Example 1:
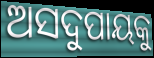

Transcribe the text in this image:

ଅସଦୁପାୟକୁ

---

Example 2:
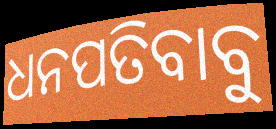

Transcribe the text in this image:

ଧନପତିବାବୁ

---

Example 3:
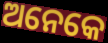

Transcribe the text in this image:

ଅନେକେ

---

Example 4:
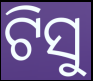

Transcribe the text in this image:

ଟିସୁ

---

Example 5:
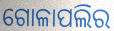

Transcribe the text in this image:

ଗୋଳାପଲିର